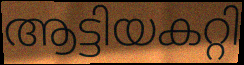
ആട്ടിയകറ്റി